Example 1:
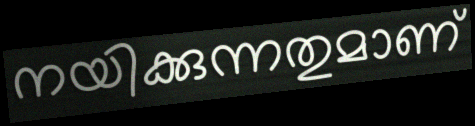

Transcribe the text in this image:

നയിക്കുന്നതുമാണ്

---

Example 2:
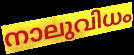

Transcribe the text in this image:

നാലുവിധം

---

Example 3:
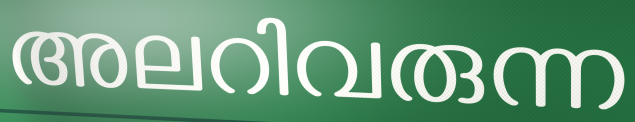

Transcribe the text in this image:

അലറിവരുന്ന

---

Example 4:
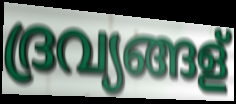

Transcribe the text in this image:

ദ്രവ്യങ്ങള്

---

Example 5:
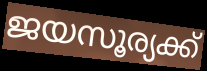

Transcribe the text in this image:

ജയസൂര്യക്ക്